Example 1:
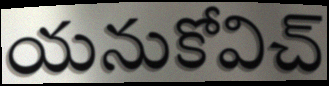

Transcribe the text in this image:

యనుకోవిచ్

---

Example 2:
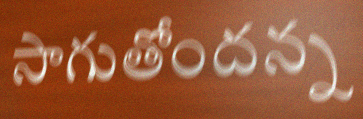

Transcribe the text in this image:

సాగుతోందన్న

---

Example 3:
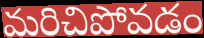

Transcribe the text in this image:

మరిచిపోవడం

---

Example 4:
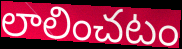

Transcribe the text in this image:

లాలించటం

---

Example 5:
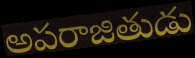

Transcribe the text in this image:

అపరాజితుడు